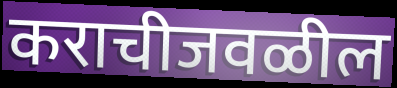
कराचीजवळील